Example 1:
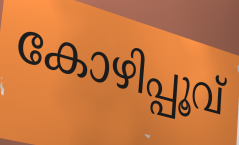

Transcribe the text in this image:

കോഴിപ്പൂവ്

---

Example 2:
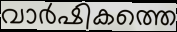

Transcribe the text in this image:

വാർഷികത്തെ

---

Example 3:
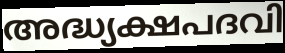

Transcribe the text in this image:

അദ്ധ്യക്ഷപദവി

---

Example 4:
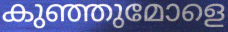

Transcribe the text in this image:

കുഞ്ഞുമോളെ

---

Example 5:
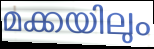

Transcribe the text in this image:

മക്കയിലും